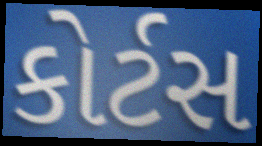
કોર્ટસ